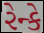
રેન્કે